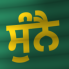
ਸੁੰਨੈ